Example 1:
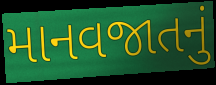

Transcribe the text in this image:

માનવજાતનું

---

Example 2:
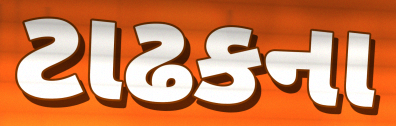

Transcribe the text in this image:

ટાઢકના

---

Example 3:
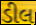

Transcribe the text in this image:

ડીલ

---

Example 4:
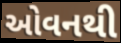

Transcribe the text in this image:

ઓવનથી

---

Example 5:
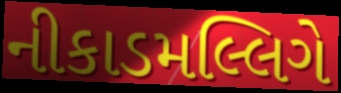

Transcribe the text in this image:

નીકાડમલ્લિગે